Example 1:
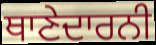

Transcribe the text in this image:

ਥਾਣੇਦਾਰਨੀ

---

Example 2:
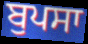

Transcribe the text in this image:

ਬੁਪਸਾ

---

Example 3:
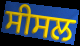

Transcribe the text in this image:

ਸੀਸਲ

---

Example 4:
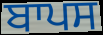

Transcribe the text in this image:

ਬਾਪਸ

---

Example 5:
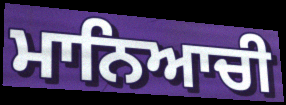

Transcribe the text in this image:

ਮਾਨਿਆਚੀ